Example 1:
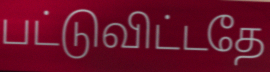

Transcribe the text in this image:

பட்டுவிட்டதே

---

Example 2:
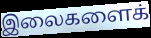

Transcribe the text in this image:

இலைகளைக்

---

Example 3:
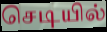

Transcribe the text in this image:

செடியில்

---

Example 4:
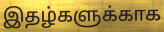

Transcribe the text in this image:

இதழ்களுக்காக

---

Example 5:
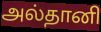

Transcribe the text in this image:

அல்தானி